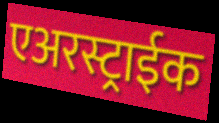
एअरस्ट्राईक